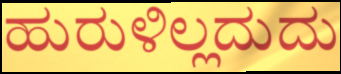
ಹುರುಳಿಲ್ಲದುದು